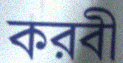
করবী